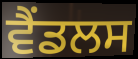
ਵੈਂਡਲਸ